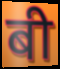
बी